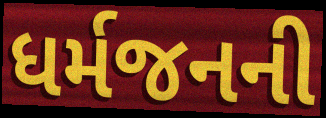
ધર્મજનની